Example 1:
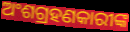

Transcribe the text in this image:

ଅଂଶଗ୍ରହଣକାରୀଙ୍କ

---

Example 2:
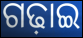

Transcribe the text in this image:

ଗଢ଼ାଇ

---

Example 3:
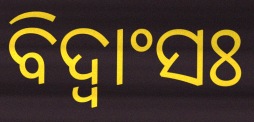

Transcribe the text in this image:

ବିଦ୍ଵାଂସଃ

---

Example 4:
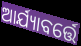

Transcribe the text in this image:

ଆର୍ଯ୍ୟାବର୍ତ୍ତେ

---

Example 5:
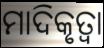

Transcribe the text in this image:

ମାଦିକୃତ୍ୱା